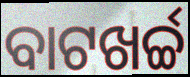
ବାଟଖର୍ଚ୍ଚ